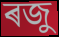
ৰজু